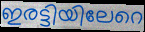
ഇരട്ടിയിലേറെ